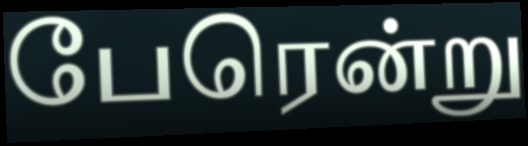
பேரென்று